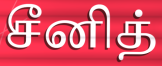
சீனித்